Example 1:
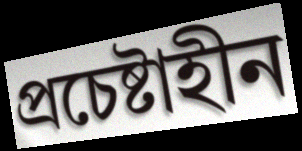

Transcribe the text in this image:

প্রচেষ্টাহীন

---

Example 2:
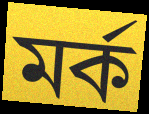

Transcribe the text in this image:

মর্ক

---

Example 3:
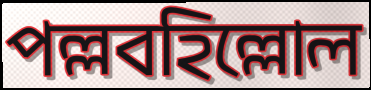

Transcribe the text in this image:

পল্লবহিল্লোল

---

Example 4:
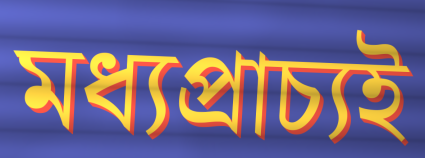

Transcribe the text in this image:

মধ্যপ্রাচ্যই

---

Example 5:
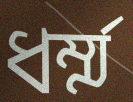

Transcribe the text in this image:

ধর্ম্ম